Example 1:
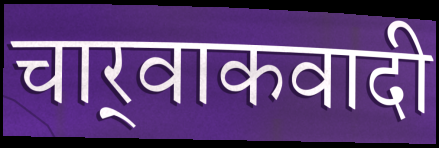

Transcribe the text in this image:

चार्वाकवादी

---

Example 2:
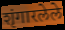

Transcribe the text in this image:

शृंगारलेले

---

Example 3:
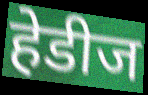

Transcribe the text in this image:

हेडीज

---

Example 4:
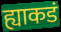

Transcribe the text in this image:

ह्याकडं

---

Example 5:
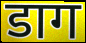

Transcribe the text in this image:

डाग